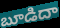
బూడిదా